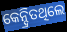
କେନ୍ଦ୍ରିତଥିଲେ